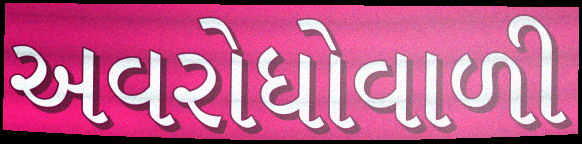
અવરોધોવાળી